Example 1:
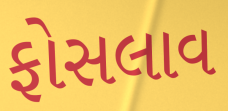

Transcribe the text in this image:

ફોસલાવ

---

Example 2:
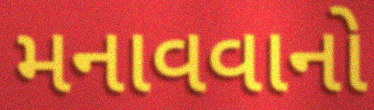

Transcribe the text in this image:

મનાવવાનો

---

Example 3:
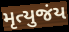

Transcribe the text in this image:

મૃત્યુજંય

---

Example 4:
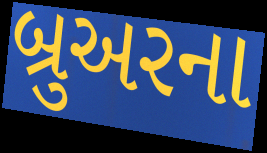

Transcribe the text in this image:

બ્રુઅરના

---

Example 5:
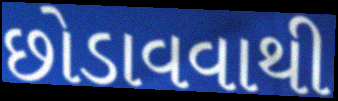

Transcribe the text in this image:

છોડાવવાથી